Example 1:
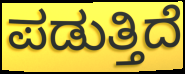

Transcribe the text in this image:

ಪಡುತ್ತಿದೆ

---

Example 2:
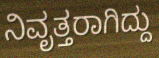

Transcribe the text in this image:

ನಿವೃತ್ತರಾಗಿದ್ದು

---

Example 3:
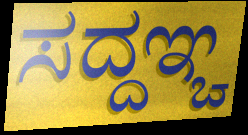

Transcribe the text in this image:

ಸದ್ದಞ್ಚ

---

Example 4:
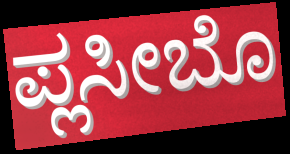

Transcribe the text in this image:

ಪ್ಲಸೀಬೊ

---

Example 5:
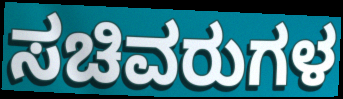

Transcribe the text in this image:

ಸಚಿವರುಗಳ